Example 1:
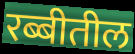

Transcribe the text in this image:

रब्बीतील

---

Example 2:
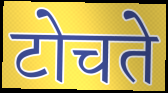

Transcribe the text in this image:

टोचते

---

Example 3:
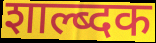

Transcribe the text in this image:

शाल्ब्दक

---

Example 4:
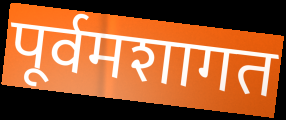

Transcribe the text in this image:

पूर्वमशागत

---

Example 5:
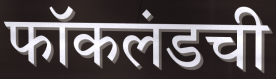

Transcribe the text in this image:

फॉकलंडची